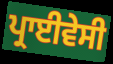
ਪ੍ਰਾਈਵੇਸੀ